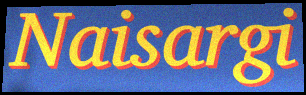
Naisargi